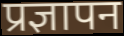
प्रज्ञापन